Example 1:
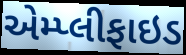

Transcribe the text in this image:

એમ્પ્લીફાઇડ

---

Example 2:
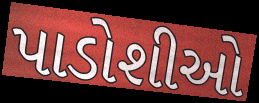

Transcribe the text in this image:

પાડોશીઓ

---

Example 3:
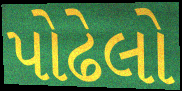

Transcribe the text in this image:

પોઢેલો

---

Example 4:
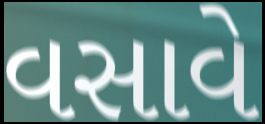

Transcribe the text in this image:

વસાવે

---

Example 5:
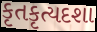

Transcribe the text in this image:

કૃતકૃત્યદશા